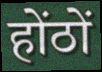
होंठों